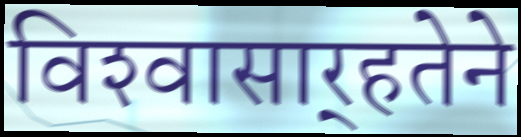
विश्वासार्हतेने